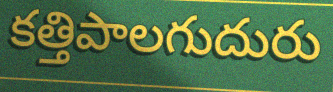
కత్తిపాలగుదురు